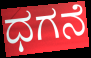
ಧಗನೆ